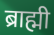
ब्राह्मी